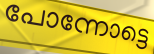
പോന്നോട്ടെ